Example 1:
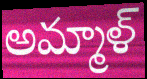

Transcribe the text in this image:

అమ్మాళ్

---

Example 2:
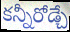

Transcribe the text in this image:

కన్నీరోడ్చే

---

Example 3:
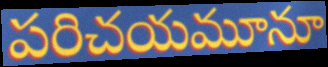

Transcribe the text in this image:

పరిచయమూనూ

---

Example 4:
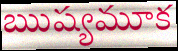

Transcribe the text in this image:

ఋష్యమూక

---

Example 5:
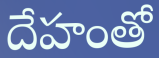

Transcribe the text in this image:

దేహంతో